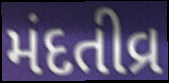
મંદતીવ્ર